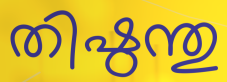
തിഷ്ഠന്തു